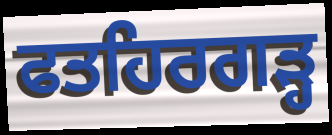
ਫਤਹਿਰਗੜ੍ਹ